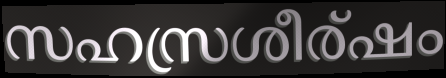
സഹസ്രശീര്ഷം